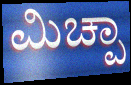
ಮಿಚ್ಪಾ